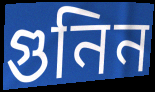
গুনিন